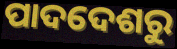
ପାଦଦେଶରୁ